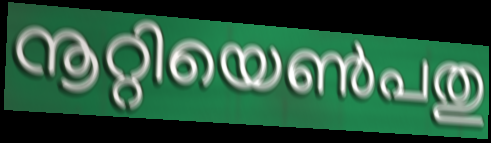
നൂറ്റിയെൺപതു